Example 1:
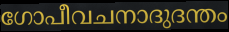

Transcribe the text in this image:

ഗോപീവചനാദുദന്തം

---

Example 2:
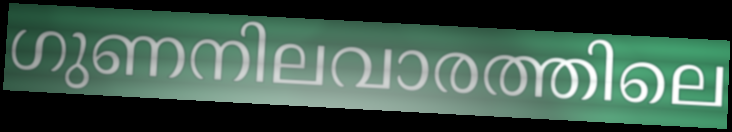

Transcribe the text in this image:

ഗുണനിലവാരത്തിലെ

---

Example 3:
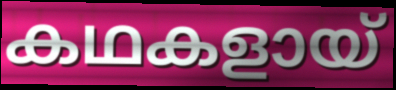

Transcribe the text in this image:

കഥകളായ്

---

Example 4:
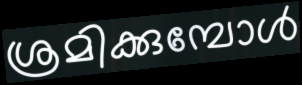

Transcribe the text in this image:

ശ്രമിക്കുമ്പോൾ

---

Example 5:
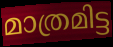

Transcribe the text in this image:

മാത്രമിട്ട